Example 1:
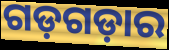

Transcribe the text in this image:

ଗଡ଼ଗଡ଼ାର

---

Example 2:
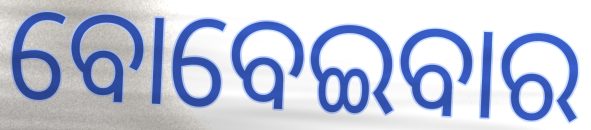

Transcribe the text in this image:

ବୋବେଇବାର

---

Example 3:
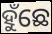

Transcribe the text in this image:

ହୁଁଛେ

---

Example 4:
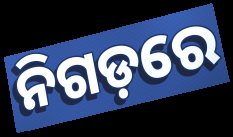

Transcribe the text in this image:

ନିଗଡ଼ରେ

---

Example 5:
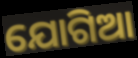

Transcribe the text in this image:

ଯୋଗିଆ